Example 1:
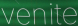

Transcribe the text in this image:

venite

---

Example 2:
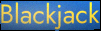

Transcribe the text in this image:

Blackjack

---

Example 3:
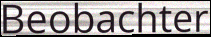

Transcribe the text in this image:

Beobachter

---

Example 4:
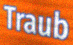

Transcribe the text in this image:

Traub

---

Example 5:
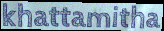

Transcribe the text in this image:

khattamitha